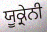
ਯੂਕ੍ਰੇਨੀ